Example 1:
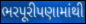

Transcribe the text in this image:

ભરપૂરીપણામાંથી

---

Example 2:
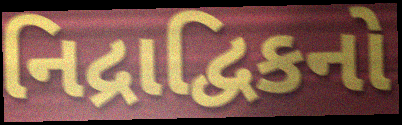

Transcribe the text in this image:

નિદ્રાદ્વિકનો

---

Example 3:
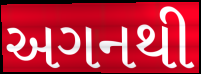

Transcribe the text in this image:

અગનથી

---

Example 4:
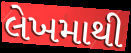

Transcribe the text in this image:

લેખમાથી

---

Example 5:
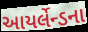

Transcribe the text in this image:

આયર્લેન્ડના